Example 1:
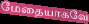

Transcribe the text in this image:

மேதையாகவே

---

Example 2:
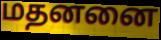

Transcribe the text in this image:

மதனனை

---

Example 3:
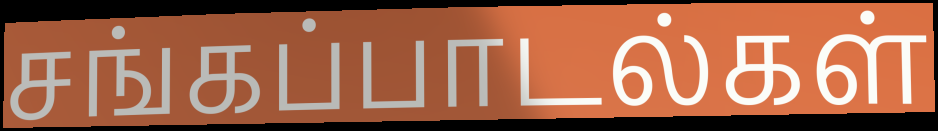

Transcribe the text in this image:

சங்கப்பாடல்கள்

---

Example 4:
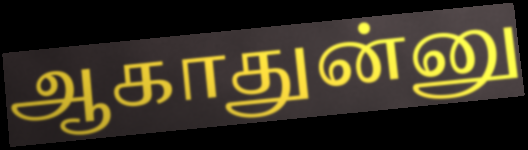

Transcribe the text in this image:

ஆகாதுன்னு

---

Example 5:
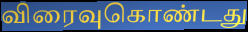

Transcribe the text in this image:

விரைவுகொண்டது